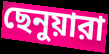
ছেনুয়ারা